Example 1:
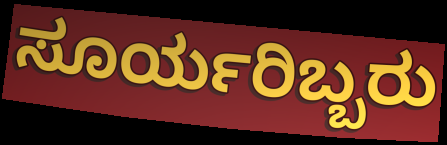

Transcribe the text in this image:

ಸೂರ್ಯರಿಬ್ಬರು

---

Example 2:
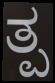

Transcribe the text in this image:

ತ್ಪ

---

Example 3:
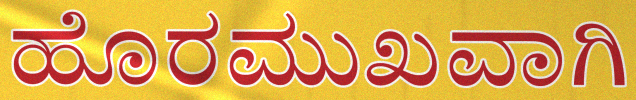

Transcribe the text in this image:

ಹೊರಮುಖವಾಗಿ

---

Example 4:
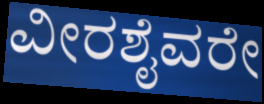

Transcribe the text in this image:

ವೀರಶೈವರೇ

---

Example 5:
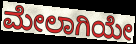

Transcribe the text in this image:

ಮೇಲಾಗಿಯೇ